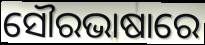
ସୌରଭାଷାରେ